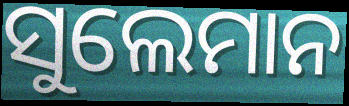
ସୁଲେମାନ